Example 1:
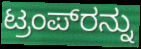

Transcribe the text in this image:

ಟ್ರಂಪ್‌ರನ್ನು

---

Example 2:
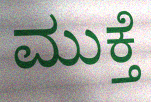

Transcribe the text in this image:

ಮುಕ್ತೆ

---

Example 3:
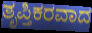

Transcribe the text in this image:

ತೃಪ್ತಿಕರವಾದ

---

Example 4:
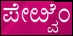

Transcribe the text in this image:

ಪೇೞ್ವೆಂ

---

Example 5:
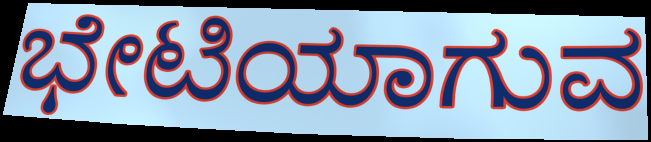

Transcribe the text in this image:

ಭೇಟಿಯಾಗುವ